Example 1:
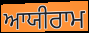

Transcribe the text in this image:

ਆਯੀਰਾਮ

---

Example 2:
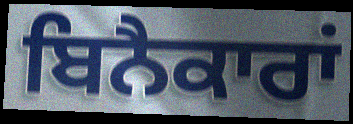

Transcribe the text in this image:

ਬਿਨੈਕਾਰਾਂ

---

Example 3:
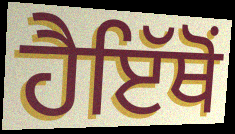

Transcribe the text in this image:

ਹੈਇੱਥੋਂ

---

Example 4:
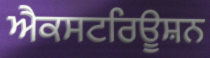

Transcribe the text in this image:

ਐਕਸਟਰਿਊਸ਼ਨ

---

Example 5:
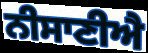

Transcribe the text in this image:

ਨੀਸਾਣੀਐ